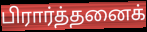
பிரார்த்தனைக்